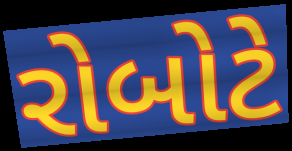
રોબોટે